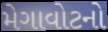
મેગાવોટનો